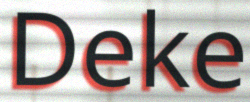
Deke